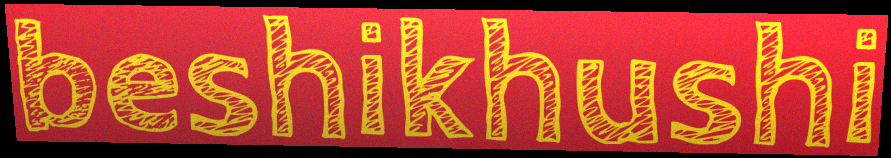
beshikhushi